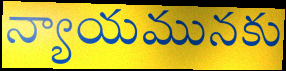
న్యాయమునకు